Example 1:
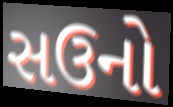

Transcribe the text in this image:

સઉનો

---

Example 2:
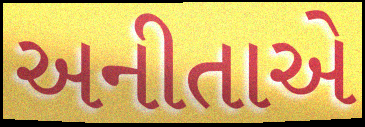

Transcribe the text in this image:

અનીતાએ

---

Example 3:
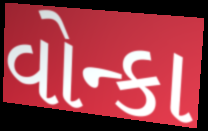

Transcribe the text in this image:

વોન્કા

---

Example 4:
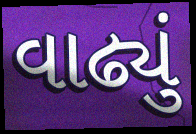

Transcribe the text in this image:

વાઢ્યું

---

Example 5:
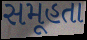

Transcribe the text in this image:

સમૂહતા